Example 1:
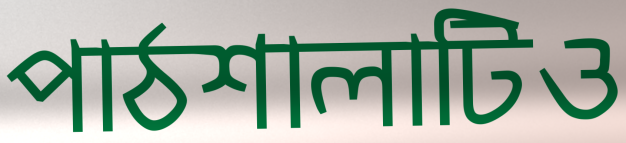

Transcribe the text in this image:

পাঠশালাটিও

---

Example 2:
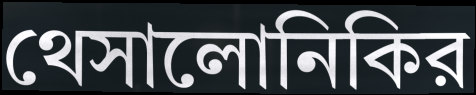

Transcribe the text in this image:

থেসালোনিকির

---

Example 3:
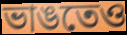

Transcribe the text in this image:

ভাঙতেও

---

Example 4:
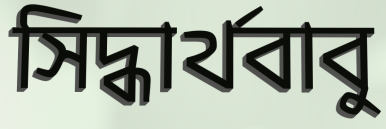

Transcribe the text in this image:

সিদ্ধার্থবাবু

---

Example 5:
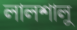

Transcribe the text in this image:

লালশালু